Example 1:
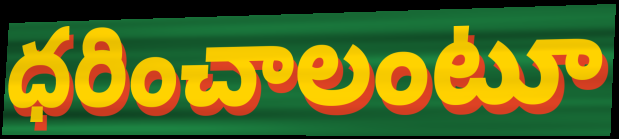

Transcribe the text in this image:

ధరించాలంటూ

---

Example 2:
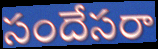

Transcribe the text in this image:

సందేసరా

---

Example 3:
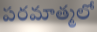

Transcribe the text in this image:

పరమాత్మలో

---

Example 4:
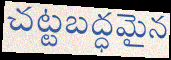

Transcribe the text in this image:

చట్టబద్ధమైన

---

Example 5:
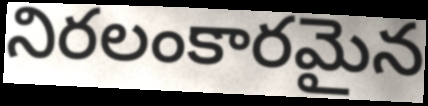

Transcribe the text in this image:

నిరలంకారమైన